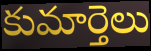
కుమార్తెలు